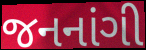
જનનાંગી